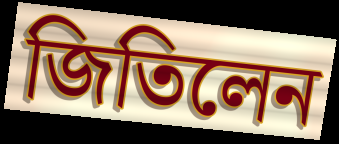
জিতিলেন